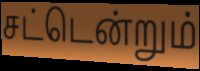
சட்டென்றும்